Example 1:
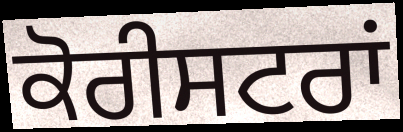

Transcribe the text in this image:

ਕੋਰੀਸਟਰਾਂ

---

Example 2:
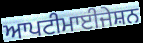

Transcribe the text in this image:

ਆਪਟੀਮਾਈਜੇਸ਼ਨ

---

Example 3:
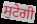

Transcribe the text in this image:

ਸੁਟੇਗੀ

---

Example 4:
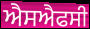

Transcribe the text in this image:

ਐਸਐਫਸੀ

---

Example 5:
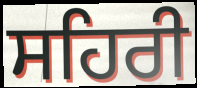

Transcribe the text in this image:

ਸਹਿਰੀ